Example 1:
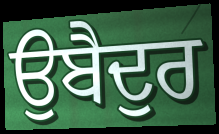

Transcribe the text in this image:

ਉਬੈਦੁਰ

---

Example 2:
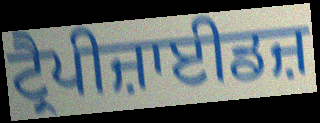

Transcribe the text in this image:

ਟ੍ਰੈਪੀਜ਼ਾਈਡਜ਼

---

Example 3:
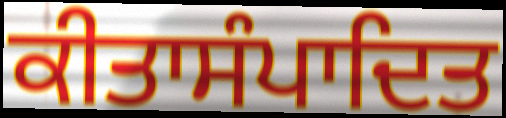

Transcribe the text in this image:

ਕੀਤਾਸੰਪਾਦਿਤ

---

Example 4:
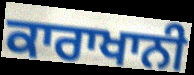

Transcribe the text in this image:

ਕਾਰਾਖਾਨੀ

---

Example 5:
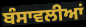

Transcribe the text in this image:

ਬੰਸਾਵਲੀਆਂ